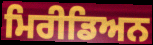
ਮਿਰੀਡਿਅਨ